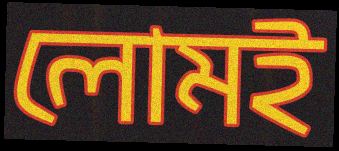
লোমই